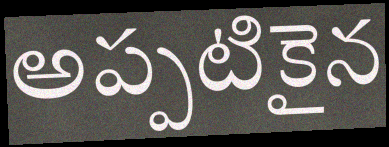
అప్పటికైన